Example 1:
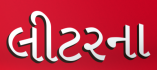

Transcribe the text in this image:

લીટરના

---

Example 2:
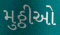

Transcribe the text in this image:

મુઠ્ઠીઓ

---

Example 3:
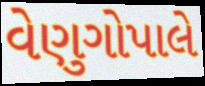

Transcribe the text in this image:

વેણુગોપાલે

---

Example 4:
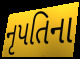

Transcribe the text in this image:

નૃપતિના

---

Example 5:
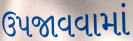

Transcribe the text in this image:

ઉપજાવવામાં